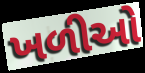
ખળીઓ